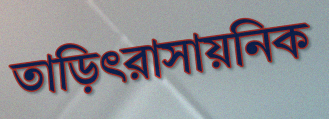
তাড়িৎরাসায়নিক